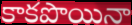
కాకపొయినా